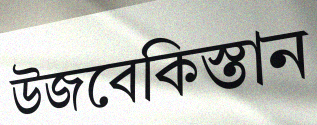
উজবেকিস্তান